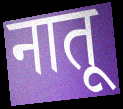
नातू